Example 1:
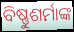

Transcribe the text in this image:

ବିଷ୍ଣୁଶର୍ମାଙ୍କ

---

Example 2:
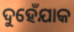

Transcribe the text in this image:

ଦୁହେଁଯାକ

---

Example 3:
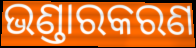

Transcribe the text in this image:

ଭଣ୍ଡାରକରଣ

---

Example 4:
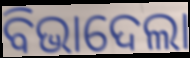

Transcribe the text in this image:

ବିଭାଦେଲା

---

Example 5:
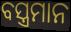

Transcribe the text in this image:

ବସ୍ତ୍ରମାନ